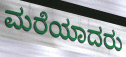
ಮರೆಯಾದರು